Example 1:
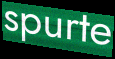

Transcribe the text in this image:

spurte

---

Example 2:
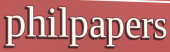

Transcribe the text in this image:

philpapers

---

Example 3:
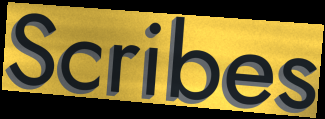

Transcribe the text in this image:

Scribes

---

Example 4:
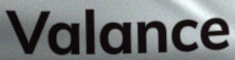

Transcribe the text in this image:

Valance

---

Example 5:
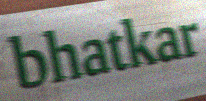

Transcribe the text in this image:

bhatkar